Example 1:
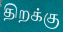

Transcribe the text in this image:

திறக்கு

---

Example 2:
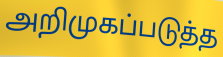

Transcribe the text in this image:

அறிமுகப்படுத்த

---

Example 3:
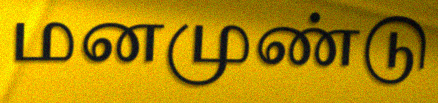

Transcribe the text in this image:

மனமுண்டு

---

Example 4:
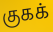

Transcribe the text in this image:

குகக்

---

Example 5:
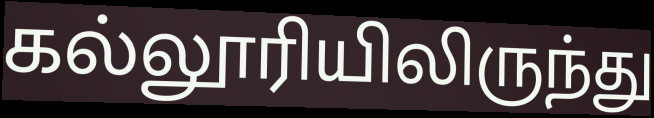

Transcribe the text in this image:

கல்லூரியிலிருந்து